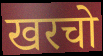
खरचो